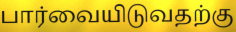
பார்வையிடுவதற்கு